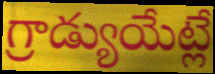
గ్రాడ్యుయేట్లే